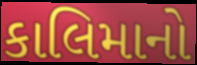
કાલિમાનો